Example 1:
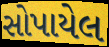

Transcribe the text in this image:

સોપાયેલ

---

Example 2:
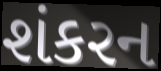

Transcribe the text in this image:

શંકરન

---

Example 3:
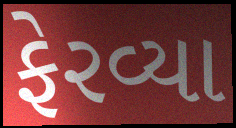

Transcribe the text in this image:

ફેરવ્યા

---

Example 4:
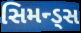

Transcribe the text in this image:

સિમન્ડ્સ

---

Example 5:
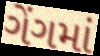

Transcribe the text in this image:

ગેંગમાં